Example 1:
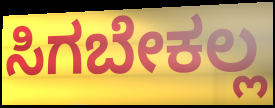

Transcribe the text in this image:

ಸಿಗಬೇಕಲ್ಲ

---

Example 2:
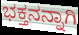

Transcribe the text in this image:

ಭಕ್ತನನ್ನಾಗಿ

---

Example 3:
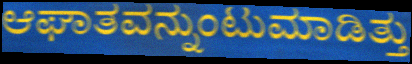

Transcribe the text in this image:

ಆಘಾತವನ್ನುಂಟುಮಾಡಿತ್ತು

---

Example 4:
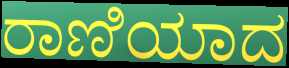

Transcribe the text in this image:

ರಾಣಿಯಾದ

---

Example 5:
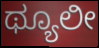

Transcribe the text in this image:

ಥ್ಯೂಲೀ